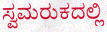
ಸ್ವಮರುಕದಲ್ಲಿ